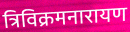
त्रिविक्रमनारायण